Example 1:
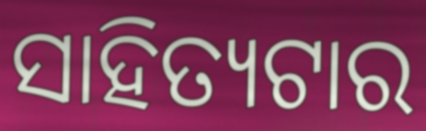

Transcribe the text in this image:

ସାହିତ୍ୟଟାର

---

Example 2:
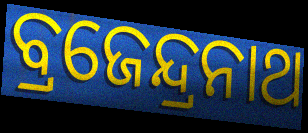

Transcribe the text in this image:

ବ୍ରଜେନ୍ଦ୍ରନାଥ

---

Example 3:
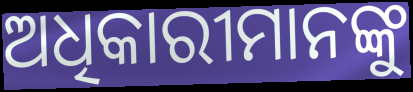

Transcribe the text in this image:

ଅଧିକାରୀମାନଙ୍କୁ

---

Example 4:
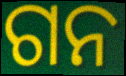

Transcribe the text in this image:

ଗନ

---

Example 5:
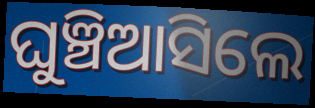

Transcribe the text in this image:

ଘୁଞ୍ଚିଆସିଲେ